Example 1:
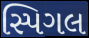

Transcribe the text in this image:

સ્પિગલ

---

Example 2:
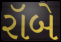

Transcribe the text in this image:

રૉબે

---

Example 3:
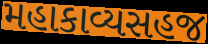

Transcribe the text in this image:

મહાકાવ્યસહજ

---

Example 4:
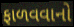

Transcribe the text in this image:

ફાળવવાનો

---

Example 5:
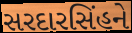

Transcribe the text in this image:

સરદારસિંહને